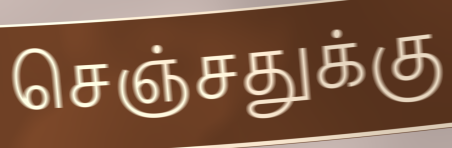
செஞ்சதுக்கு